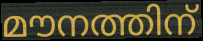
മൗനത്തിന്